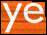
ye